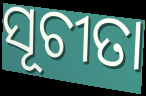
ସୂଚୀତା